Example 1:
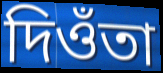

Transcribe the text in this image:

দিওঁতা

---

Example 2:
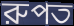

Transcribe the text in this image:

ৰুপত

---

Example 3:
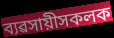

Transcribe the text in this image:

ব্যৱসায়ীসকলক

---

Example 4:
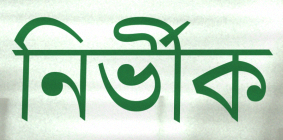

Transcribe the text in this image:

নিৰ্ভীক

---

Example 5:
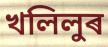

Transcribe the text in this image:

খলিলুৰ